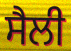
ਸੈਲੀ